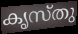
കൃസ്തു